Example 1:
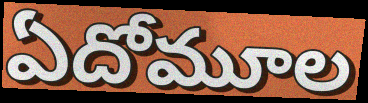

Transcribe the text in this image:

ఏదోమూల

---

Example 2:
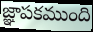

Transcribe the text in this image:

జ్ఞాపకముంది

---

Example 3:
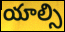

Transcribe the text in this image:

యాల్సి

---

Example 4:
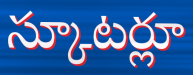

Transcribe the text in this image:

స్కూటర్లూ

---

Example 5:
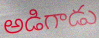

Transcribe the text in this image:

అడిగాడు